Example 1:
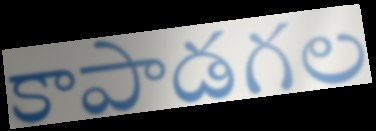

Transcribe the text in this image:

కాపాడగల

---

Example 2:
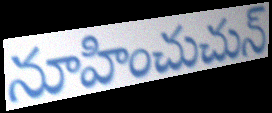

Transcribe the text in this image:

నూహించుచున్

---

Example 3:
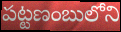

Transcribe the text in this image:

పట్టణంబులోని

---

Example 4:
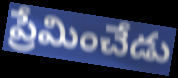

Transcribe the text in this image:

ప్రేమించేడు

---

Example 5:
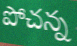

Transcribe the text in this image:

పోచన్న